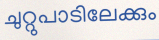
ചുറ്റുപാടിലേക്കും